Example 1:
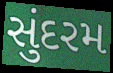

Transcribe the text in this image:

સુંદરમ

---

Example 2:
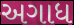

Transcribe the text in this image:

અગાધ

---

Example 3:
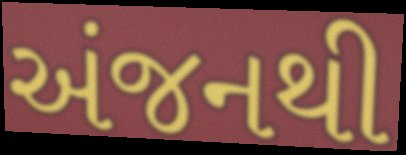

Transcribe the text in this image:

અંજનથી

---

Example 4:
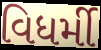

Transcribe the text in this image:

વિધર્મી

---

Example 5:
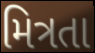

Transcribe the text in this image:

મિત્રતા